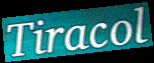
Tiracol